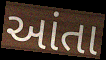
આંતા